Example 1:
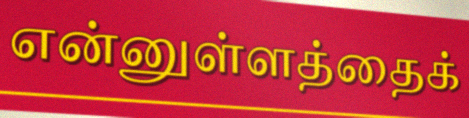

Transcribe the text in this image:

என்னுள்ளத்தைக்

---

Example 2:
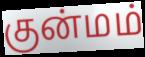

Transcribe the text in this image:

குன்மம்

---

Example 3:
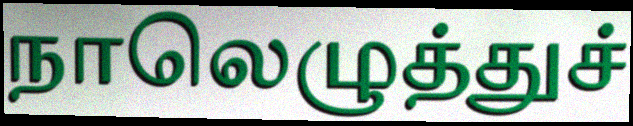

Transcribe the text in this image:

நாலெழுத்துச்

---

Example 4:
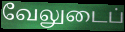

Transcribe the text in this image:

வேலுடைப்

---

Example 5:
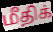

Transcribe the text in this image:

மீதிக்